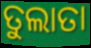
ତୁଲାତା